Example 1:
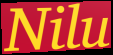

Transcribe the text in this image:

Nilu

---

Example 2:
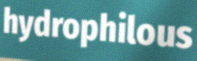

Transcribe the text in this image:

hydrophilous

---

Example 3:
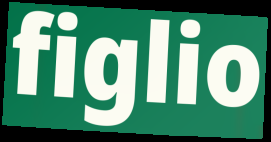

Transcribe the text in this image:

figlio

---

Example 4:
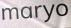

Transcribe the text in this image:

maryo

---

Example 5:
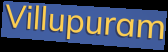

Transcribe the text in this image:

Villupuram